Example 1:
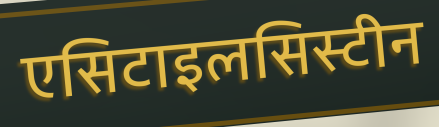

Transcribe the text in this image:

एसिटाइलसिस्टीन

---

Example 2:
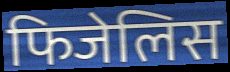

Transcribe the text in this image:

फिजेलिस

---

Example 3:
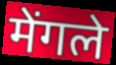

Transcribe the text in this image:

मेंगले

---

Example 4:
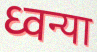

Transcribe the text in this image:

ध्वन्या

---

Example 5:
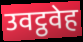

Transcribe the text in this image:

उवट्ठवेह